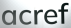
acref